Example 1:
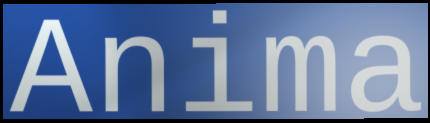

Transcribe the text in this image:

Anima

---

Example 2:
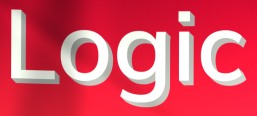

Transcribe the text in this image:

Logic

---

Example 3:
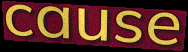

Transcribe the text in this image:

cause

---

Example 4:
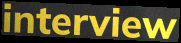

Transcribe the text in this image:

interview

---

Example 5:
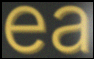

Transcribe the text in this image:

ea